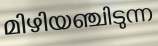
മിഴിയഞ്ചിടുന്ന